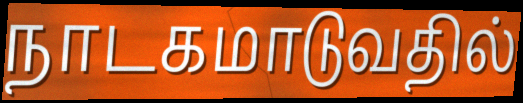
நாடகமாடுவதில்